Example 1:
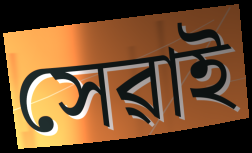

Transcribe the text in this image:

সেৱাই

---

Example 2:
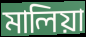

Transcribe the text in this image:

মালিয়া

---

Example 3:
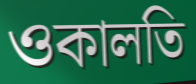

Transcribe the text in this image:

ওকালতি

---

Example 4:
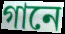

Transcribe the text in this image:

গানে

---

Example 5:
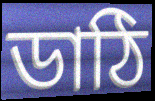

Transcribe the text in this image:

ডাঠি